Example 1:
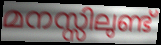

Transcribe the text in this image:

മനസ്സിലുണ്ട്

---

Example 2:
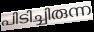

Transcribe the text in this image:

പിടിച്ചിരുന്ന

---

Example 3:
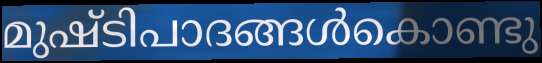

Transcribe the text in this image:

മുഷ്ടിപാദങ്ങൾകൊണ്ടു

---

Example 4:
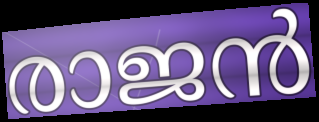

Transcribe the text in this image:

രാജൻ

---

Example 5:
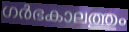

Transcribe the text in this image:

ഗർഭകാലത്തും